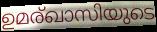
ഉമര്ഖാസിയുടെ